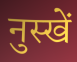
नुस्खें